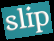
slip